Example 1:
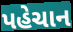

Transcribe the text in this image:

પહેચાન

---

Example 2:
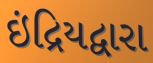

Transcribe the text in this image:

ઇંદ્રિયદ્વારા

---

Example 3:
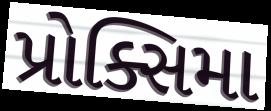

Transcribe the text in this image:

પ્રોક્સિમા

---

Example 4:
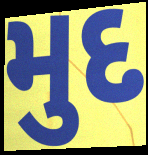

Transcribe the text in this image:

મુદ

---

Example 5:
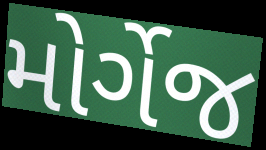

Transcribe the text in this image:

મોર્ગેજ